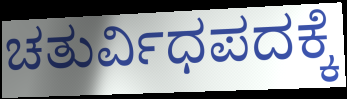
ಚತುರ್ವಿಧಪದಕ್ಕೆ